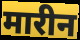
मारीन